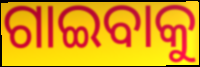
ଗାଇବାକୁ